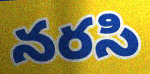
నరసి